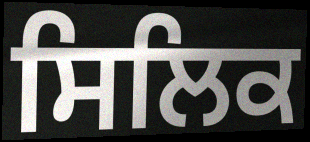
ਸਿਲਿਕ